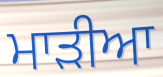
ਮਾੜੀਆ